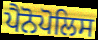
ਪੈਨੋਪੋਲਿਸ